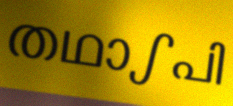
തഥാഽപി